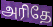
அரிதே